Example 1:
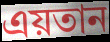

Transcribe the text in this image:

এয়তান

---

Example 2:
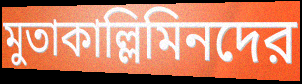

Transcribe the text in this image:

মুতাকাল্লিমিনদের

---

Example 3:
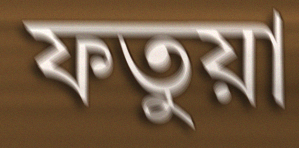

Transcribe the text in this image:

ফতুয়া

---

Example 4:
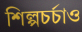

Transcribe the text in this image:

শিল্পচর্চাও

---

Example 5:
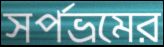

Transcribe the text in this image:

সর্পভ্রমের